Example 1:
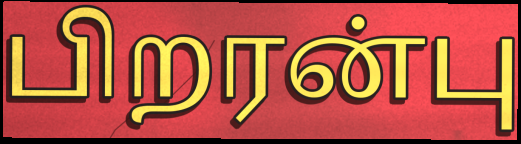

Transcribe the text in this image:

பிறரன்பு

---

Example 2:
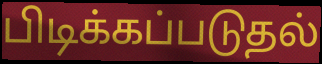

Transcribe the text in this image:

பிடிக்கப்படுதல்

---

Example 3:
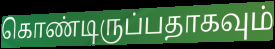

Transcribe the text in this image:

கொண்டிருப்பதாகவும்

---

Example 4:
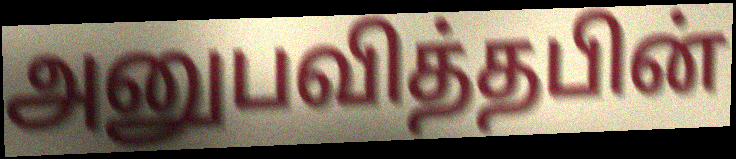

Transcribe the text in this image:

அனுபவித்தபின்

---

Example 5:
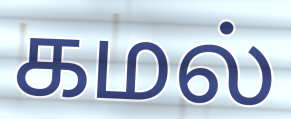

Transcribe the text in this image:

கமல்